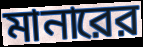
মানারের